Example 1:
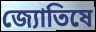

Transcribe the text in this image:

জ্যোতিষে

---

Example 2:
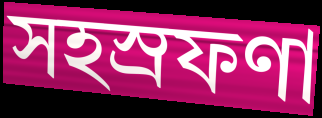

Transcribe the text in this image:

সহস্রফণা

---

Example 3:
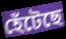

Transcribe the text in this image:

হেঁটেছে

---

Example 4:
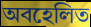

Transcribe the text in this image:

অবহেলিত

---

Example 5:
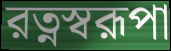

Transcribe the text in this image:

রত্নস্বরূপা